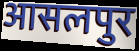
आसलपुर